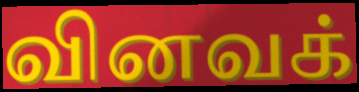
வினவக்